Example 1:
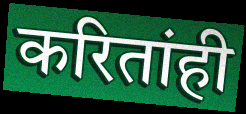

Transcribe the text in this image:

करितांही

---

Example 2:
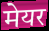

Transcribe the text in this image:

मेयर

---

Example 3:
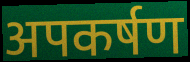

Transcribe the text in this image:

अपकर्षण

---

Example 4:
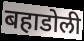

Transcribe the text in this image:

बहाडोली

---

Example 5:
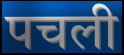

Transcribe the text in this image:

पचली